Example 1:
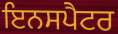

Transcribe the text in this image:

ਇਨਸਪੈਟਰ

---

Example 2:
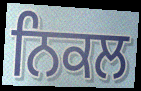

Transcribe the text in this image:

ਨਿਕਲ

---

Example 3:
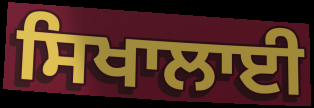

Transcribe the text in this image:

ਸਿਖਾਲਾਈ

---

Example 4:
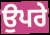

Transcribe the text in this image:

ਉਪਰੇ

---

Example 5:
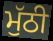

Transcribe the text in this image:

ਮੁੱਠੀ